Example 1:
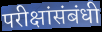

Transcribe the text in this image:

परीक्षांसंबंधी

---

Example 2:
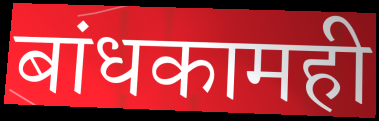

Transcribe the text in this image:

बांधकामही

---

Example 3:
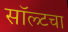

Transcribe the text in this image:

सॉल्टचा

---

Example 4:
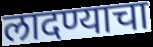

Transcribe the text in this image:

लादण्याचा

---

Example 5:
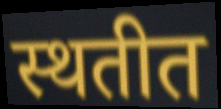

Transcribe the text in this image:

स्थतीत